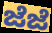
ಜೆಜೆ